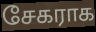
சேகராக